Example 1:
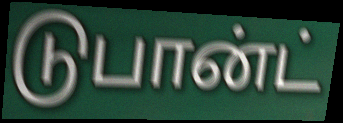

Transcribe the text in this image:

டுபான்ட்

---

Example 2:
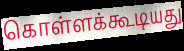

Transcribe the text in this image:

கொள்ளக்கூடியது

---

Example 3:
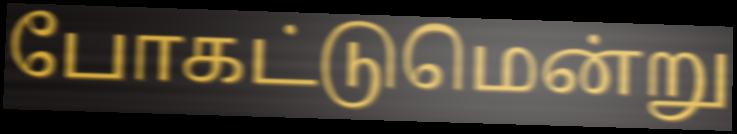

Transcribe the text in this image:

போகட்டுமென்று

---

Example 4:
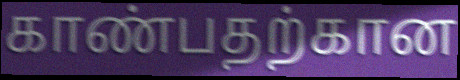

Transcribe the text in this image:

காண்பதற்கான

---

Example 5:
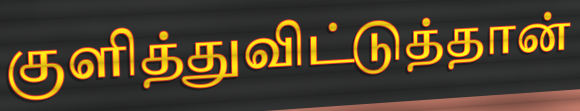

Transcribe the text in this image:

குளித்துவிட்டுத்தான்